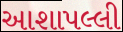
આશાપલ્લી